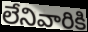
లేనివారికి